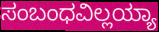
ಸಂಬಂಧವಿಲ್ಲಯ್ಯಾ